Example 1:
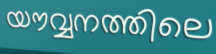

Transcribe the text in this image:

യൗവ്വനത്തിലെ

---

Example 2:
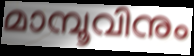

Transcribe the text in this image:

മാമ്പൂവിനും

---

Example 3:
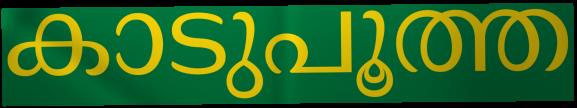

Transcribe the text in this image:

കാടുപൂത്ത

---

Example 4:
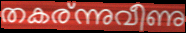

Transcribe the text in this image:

തകര്ന്നുവീണു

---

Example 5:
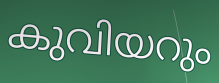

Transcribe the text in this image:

കുവിയറും